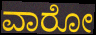
ವಾರೋ